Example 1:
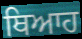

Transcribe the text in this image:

ਥਿਆਹ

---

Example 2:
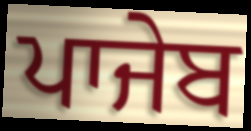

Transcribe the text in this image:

ਪਾਜੇਬ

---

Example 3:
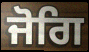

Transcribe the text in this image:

ਜੋਗਿ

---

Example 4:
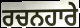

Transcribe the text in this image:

ਰਚਨਹਾਰੇ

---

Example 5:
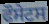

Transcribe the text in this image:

ਫੌਸੇਟਸ